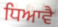
ਧਿਆਵੈ